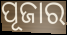
ପୂଜାର